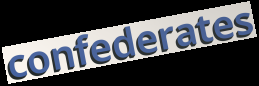
confederates